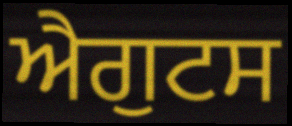
ਐਗੁਟਸ